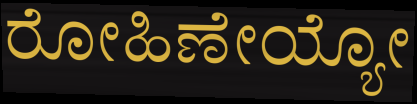
ರೋಹಿಣೇಯ್ಯೋ